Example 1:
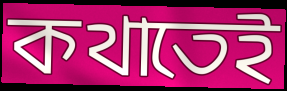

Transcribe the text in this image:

কথাতেই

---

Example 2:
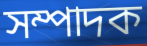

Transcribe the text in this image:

সম্পাদক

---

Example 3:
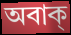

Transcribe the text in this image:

অবাক্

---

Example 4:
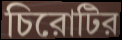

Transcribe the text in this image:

চিরোটির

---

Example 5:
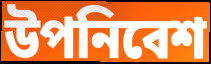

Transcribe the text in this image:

উপনিবেশ